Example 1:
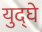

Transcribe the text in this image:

युद्घे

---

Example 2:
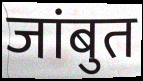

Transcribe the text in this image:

जांबुत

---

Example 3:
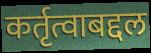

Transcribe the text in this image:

कर्तृत्वाबद्दल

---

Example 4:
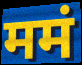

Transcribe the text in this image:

ममं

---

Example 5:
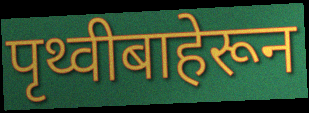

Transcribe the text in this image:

पृथ्वीबाहेरून